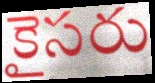
కైసరు